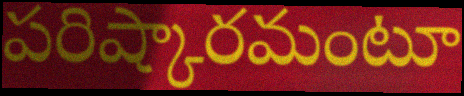
పరిష్కారమంటూ